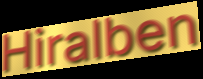
Hiralben